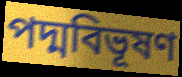
পদ্মবিভূষণ